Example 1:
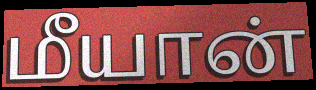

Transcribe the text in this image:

மீயான்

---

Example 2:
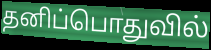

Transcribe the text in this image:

தனிப்பொதுவில்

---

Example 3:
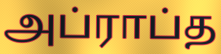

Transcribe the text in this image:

அப்ராப்த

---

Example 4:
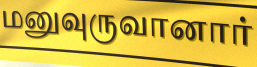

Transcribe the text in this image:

மனுவுருவானார்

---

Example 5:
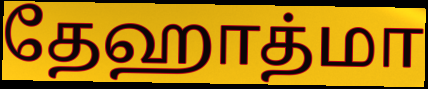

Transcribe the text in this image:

தேஹாத்மா